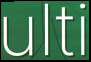
ulti